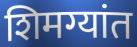
शिमग्यांत